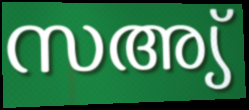
സഅ്യ്